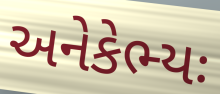
અનેકેભ્યઃ